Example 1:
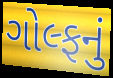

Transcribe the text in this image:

ગોલ્ફનું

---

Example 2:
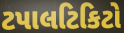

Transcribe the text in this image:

ટપાલટિકિટો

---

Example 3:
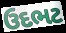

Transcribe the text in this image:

ઉદભટ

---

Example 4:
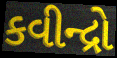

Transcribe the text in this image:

કવીન્દ્રો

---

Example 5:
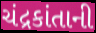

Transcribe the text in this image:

ચંદ્રકાંતાની